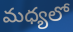
మధ్యలో